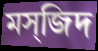
মস্জিদ